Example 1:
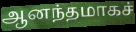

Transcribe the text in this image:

ஆனந்தமாகச்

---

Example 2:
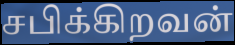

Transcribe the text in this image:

சபிக்கிறவன்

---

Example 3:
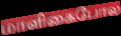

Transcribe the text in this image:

மாளிகைபோல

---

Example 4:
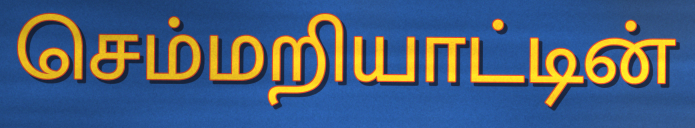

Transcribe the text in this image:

செம்மறியாட்டின்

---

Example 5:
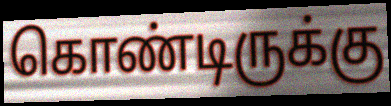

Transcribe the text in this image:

கொண்டிருக்கு